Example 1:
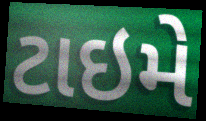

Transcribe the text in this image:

ટાઇમે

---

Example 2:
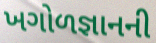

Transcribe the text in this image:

ખગોળજ્ઞાનની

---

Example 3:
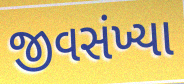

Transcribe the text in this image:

જીવસંખ્યા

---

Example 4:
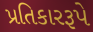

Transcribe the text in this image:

પ્રતિકારરૂપે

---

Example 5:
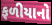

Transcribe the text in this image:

ફળીયાનો